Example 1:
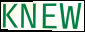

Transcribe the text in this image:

KNEW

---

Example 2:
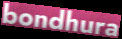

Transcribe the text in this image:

bondhura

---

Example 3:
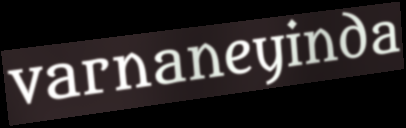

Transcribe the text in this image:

varnaneyinda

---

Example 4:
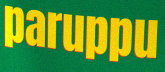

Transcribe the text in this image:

paruppu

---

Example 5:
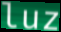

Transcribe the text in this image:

luz